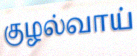
குழல்வாய்